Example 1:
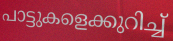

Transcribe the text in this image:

പാട്ടുകളെക്കുറിച്ച്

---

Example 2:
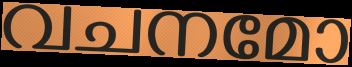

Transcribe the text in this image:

വചനമോ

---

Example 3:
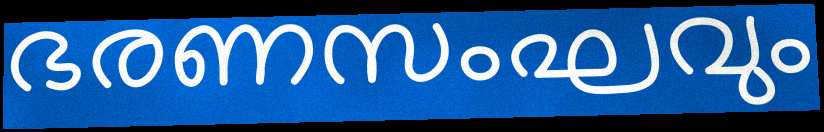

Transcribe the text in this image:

ഭരണസംഘവും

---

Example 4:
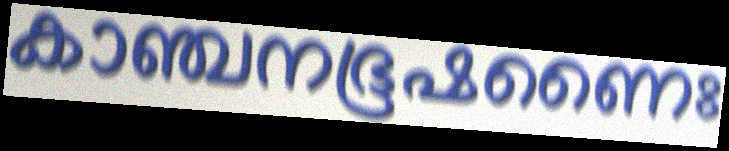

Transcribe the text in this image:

കാഞ്ചനഭൂഷണൈഃ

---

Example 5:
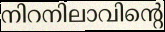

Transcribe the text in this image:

നിറനിലാവിന്റെ